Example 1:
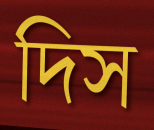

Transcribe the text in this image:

দিস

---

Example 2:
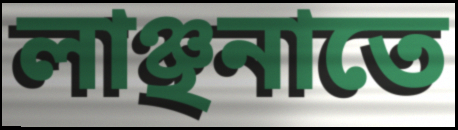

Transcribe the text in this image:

লাঞ্ছনাতে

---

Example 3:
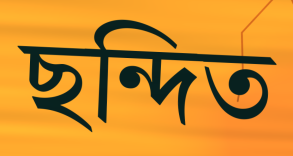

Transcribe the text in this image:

ছন্দিত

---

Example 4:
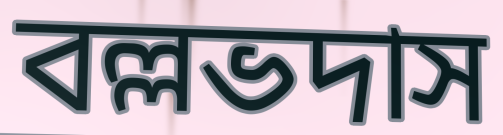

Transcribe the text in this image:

বল্লভদাস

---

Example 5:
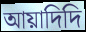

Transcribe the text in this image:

আয়াদিদি